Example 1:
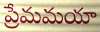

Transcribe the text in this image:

ప్రేమమయా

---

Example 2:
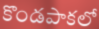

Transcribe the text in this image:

కొండపాకలో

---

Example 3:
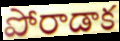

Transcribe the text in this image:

పోరాడాక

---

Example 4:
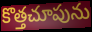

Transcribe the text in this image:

కొత్తచూపును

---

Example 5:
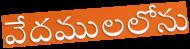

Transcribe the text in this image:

వేదములలోను